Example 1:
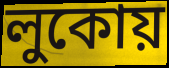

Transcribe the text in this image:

লুকোয়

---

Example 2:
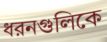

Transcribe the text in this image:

ধরনগুলিকে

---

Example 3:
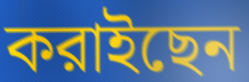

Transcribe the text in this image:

করাইছেন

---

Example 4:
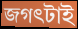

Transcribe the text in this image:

জগৎটাই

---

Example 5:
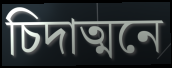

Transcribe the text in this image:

চিদাত্মনে